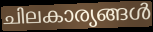
ചിലകാര്യങ്ങൾ